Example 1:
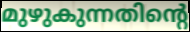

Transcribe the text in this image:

മുഴുകുന്നതിന്റെ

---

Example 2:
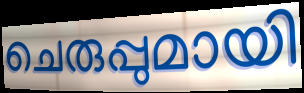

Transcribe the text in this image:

ചെരുപ്പുമായി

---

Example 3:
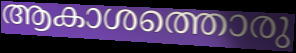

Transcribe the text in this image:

ആകാശത്തൊരു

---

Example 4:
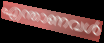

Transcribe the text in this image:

എന്താണവൾ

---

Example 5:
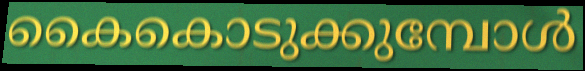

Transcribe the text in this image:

കൈകൊടുക്കുമ്പോൾ